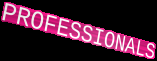
PROFESSIONALS